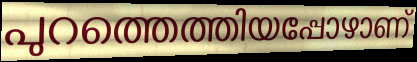
പുറത്തെത്തിയപ്പോഴാണ്